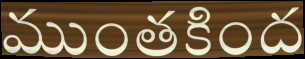
ముంతకింద